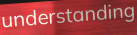
understanding